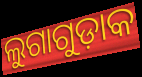
ଲୁଗାଗୁଡ଼ାକ